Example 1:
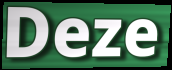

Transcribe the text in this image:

Deze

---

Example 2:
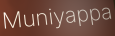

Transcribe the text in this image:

Muniyappa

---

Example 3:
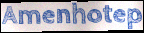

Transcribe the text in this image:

Amenhotep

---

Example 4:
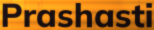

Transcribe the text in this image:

Prashasti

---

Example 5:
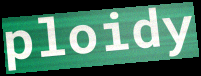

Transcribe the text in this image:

ploidy